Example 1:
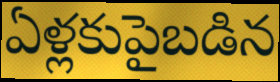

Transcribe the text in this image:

ఏళ్లకుపైబడిన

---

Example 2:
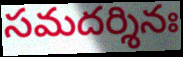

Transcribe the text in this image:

సమదర్శినః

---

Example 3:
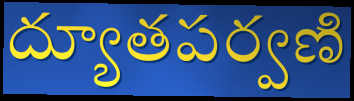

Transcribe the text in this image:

ద్యూతపర్వణి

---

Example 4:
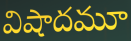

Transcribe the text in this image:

విషాదమూ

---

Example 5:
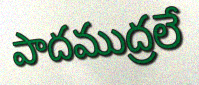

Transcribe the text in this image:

పాదముద్రలే